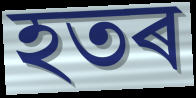
হতৰ